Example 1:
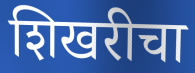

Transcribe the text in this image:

शिखरीचा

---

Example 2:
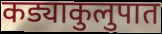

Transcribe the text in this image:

कड्याकुलुपात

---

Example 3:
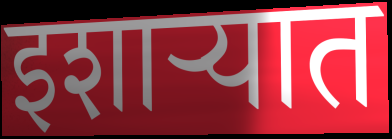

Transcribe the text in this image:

इशाऱ्यात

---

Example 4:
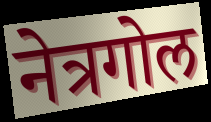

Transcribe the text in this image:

नेत्रगोल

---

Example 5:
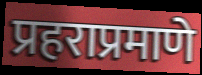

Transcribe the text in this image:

प्रहराप्रमाणे